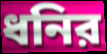
ধনির